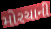
મોરચાની